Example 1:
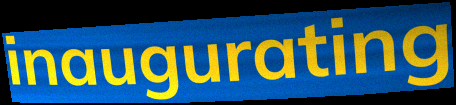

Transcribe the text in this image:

inaugurating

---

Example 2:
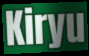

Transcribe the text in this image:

Kiryu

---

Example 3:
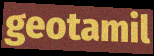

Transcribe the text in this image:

geotamil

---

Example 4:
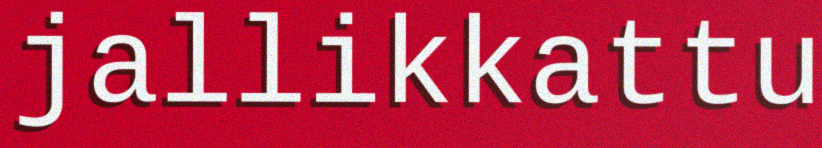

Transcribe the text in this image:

jallikkattu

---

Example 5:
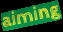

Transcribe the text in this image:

aiming